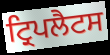
ਟ੍ਰਿਪਲੈਟਸ